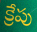
క్రేపు